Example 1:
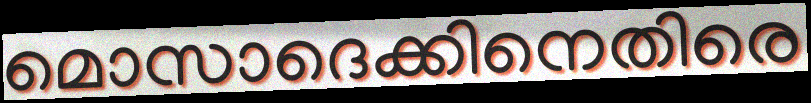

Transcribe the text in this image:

മൊസാദെക്കിനെതിരെ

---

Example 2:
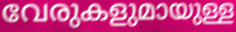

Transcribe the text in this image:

വേരുകളുമായുള്ള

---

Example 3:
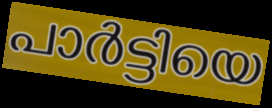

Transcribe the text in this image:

പാർട്ടിയെ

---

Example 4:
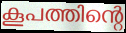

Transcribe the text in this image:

കൂപത്തിന്റെ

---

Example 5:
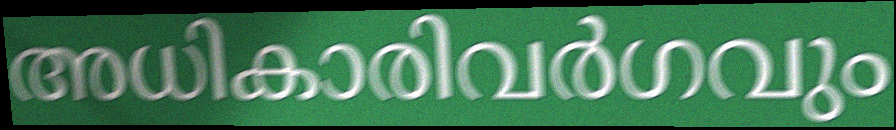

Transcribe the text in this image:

അധികാരിവർഗവും